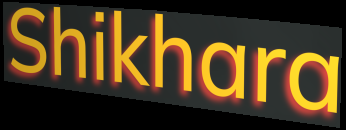
Shikhara